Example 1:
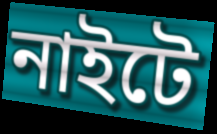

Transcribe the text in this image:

নাইটে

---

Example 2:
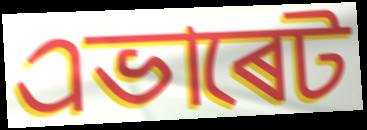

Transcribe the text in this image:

এভাৰেট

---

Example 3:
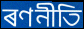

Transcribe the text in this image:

ৰণনীতি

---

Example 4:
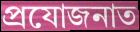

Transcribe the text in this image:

প্ৰযোজনাত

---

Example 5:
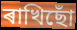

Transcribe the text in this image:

ৰাখিছোঁ